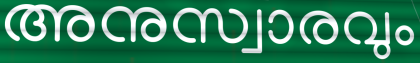
അനുസ്വാരവും